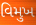
વિમુખ